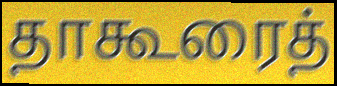
தாகூரைத்